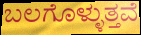
ಬಲಗೊಳ್ಳುತ್ತವೆ